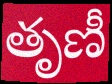
తృణీ